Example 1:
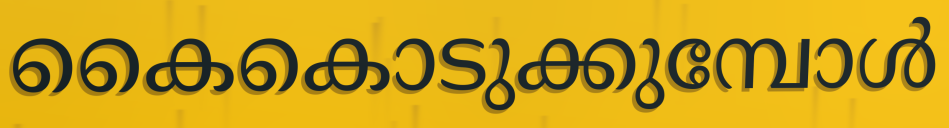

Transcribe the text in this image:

കൈകൊടുക്കുമ്പോൾ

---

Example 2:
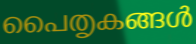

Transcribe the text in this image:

പൈതൃകങ്ങൾ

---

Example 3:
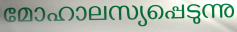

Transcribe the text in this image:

മോഹാലസ്യപ്പെടുന്നു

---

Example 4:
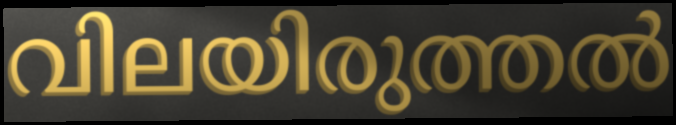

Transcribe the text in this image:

വിലയിരുത്തൽ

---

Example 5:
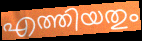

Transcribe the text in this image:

എത്തിയതും